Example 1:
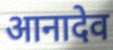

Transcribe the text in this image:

आनादेव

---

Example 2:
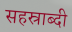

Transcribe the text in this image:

सहस्राब्दी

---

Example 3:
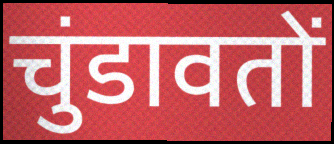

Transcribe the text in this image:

चुंडावतों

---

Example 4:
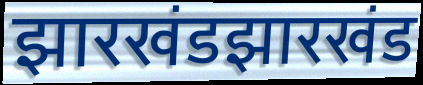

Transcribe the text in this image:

झारखंडझारखंड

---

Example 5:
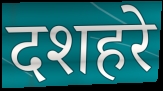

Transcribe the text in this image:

दशहरे